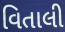
વિતાલી